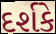
દર્શકે